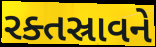
રક્તસ્રાવને